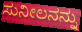
ಸುನೀಲನನ್ನು